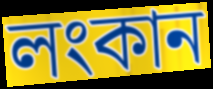
লংকান